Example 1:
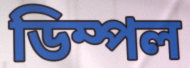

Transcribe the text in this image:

ডিম্পল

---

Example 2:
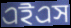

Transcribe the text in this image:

এইএস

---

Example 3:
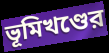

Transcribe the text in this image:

ভূমিখণ্ডের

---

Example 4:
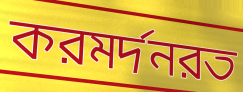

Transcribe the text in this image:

করমর্দনরত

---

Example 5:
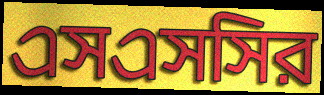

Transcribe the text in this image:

এসএসসির